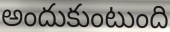
అందుకుంటుంది